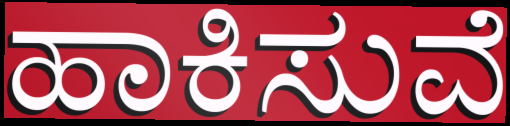
ಹಾಕಿಸುವೆ